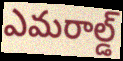
ఎమరాల్డ్